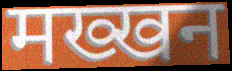
मख्खन